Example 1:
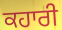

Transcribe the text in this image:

ਕਹਾਰੀ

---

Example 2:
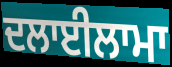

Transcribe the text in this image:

ਦਲਾਈਲਾਮਾ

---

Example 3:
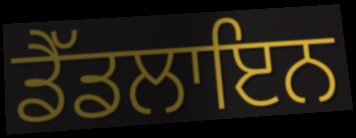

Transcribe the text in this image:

ਡੈੱਡਲਾਇਨ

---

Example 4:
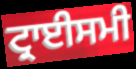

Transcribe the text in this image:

ਟ੍ਰਾਈਸਮੀ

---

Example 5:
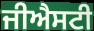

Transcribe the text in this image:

ਜੀਐਸਟੀ